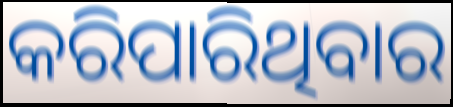
କରିପାରିଥିବାର